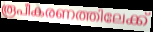
രൂപീകരണത്തിലേക്ക്